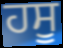
ਹਸੂ